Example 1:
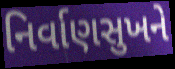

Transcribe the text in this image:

નિર્વાણસુખને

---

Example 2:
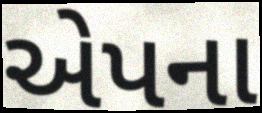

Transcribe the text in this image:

એપના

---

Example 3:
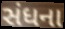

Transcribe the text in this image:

સંધના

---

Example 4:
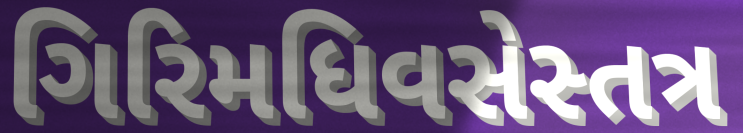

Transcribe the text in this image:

ગિરિમધિવસેસ્તત્ર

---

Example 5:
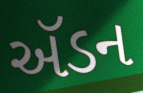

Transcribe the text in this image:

ઍડન